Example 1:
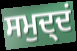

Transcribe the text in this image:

ਸਮੁਦ੍ਦਂ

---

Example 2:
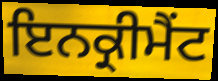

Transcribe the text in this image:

ਇਨਕ੍ਰੀਮੈਂਟ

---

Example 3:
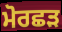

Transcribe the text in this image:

ਮੋਰਛੜ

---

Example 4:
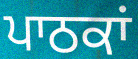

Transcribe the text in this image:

ਪਾਠਕਾਂ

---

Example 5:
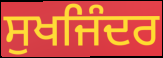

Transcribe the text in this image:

ਸੁਖਜਿੰਦਰ